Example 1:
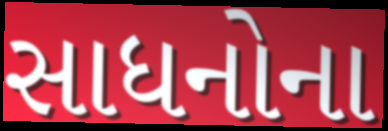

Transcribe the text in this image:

સાધનોના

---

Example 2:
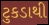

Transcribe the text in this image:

ટુકડાથી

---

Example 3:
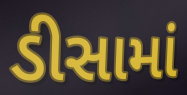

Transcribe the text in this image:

ડીસામાં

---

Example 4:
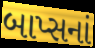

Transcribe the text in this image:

બાપ્સનાં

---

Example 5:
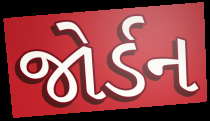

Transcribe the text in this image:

જોર્ડન